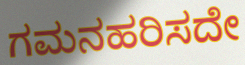
ಗಮನಹರಿಸದೇ